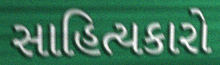
સાહિત્યકારો